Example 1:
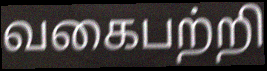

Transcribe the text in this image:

வகைபற்றி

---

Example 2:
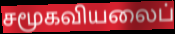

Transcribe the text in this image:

சமூகவியலைப்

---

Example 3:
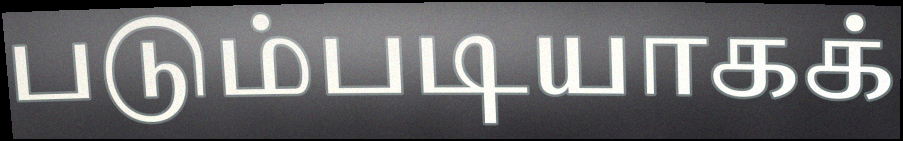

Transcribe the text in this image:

படும்படியாகக்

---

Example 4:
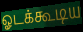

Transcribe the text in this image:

ஓடக்கூடிய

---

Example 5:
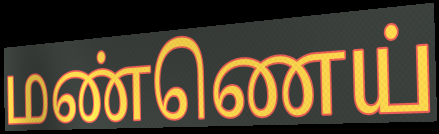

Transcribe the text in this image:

மண்ணெய்